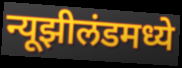
न्यूझीलंडमध्ये